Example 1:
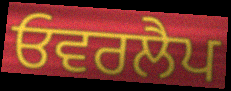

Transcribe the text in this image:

ਓਵਰਲੈਪ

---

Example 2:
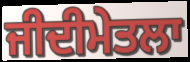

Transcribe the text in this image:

ਜੀਦੀਮੇਤਲਾ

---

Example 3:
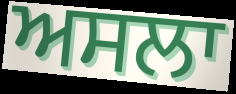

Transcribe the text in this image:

ਅਸਲਾ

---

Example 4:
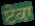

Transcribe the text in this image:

ਏਕਾ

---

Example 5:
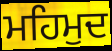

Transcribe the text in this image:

ਮਹਿਮੁਦ